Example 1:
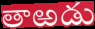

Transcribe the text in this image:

తాఱడు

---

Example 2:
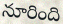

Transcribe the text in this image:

నూరింది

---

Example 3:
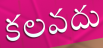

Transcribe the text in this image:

కలవదు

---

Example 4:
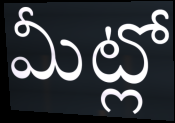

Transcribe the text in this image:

మీట్లో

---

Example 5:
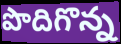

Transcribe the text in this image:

పొదిగొన్న